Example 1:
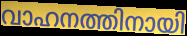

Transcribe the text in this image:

വാഹനത്തിനായി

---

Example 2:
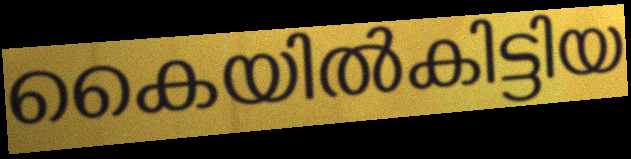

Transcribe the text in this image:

കൈയിൽകിട്ടിയ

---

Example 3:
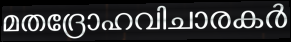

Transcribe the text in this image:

മതദ്രോഹവിചാരകർ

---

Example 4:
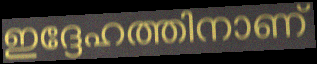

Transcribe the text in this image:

ഇദ്ദേഹത്തിനാണ്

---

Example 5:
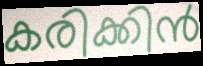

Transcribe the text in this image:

കരിക്കിൻ